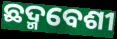
ଛଦ୍ମବେଶୀ